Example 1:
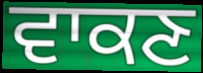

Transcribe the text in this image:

ਵਾਕਣ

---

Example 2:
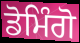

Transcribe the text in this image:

ਡੋਮਿੰਗੋ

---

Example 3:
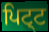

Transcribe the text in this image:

ਪਿਟ੍ਟ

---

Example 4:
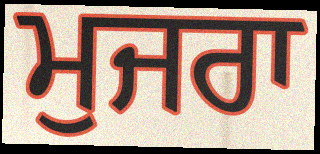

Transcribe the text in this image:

ਮੁਜਰਾ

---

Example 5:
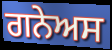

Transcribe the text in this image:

ਗਨੇਅਸ